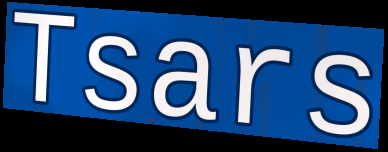
Tsars